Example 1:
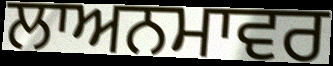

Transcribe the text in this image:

ਲਾਅਨਮਾਵਰ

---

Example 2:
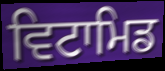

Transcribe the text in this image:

ਵਿਟਾਮਿਡ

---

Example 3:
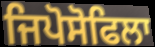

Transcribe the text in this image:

ਜਿਪੋਸੋਫਿਲਾ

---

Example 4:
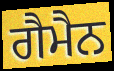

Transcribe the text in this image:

ਗੈਮੈਨ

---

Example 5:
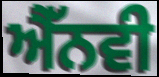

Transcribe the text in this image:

ਐੱਨਵੀ